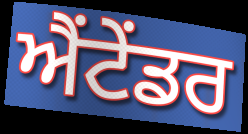
ਐਂਟੇਂਡਰ